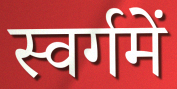
स्वर्गमें